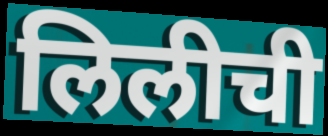
लिलीची